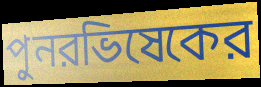
পুনরভিষেকের